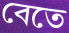
বেতে